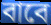
বাবে